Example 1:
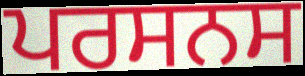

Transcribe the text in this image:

ਪਰਸਨਸ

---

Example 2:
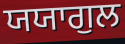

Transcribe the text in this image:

ਯਯਾਗੁਲ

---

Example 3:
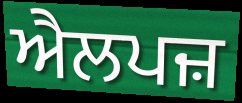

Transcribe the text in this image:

ਐਲਪਜ਼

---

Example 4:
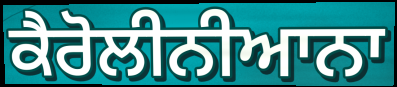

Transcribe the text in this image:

ਕੈਰੋਲੀਨੀਆਨਾ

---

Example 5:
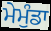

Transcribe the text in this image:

ਮੇਮੁੰਡਾ